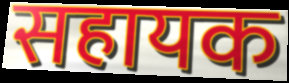
सहायक